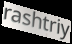
rashtriy